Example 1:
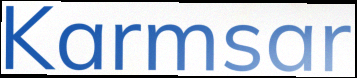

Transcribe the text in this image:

Karmsar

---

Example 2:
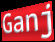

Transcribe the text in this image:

Ganj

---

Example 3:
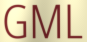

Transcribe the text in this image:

GML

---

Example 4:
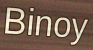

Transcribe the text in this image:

Binoy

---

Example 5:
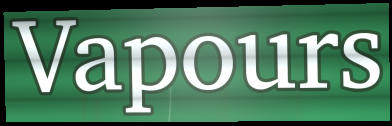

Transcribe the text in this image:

Vapours